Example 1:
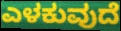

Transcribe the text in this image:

ಎಳಕುವುದೆ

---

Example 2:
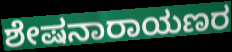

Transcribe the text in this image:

ಶೇಷನಾರಾಯಣರ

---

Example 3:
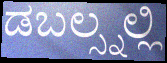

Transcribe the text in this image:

ಡಬಲ್ಸ್ನಲ್ಲಿ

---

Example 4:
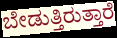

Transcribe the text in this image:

ಬೇಡುತ್ತಿರುತ್ತಾರೆ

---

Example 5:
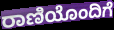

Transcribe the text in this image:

ರಾಣಿಯೊಂದಿಗೆ